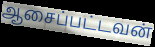
ஆசைப்பட்டவன்